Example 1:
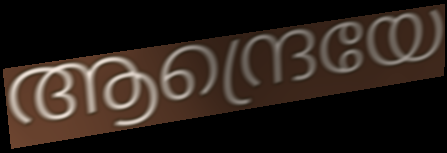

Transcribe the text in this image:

ആന്ദ്രെയേ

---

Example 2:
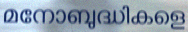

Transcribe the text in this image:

മനോബുദ്ധികളെ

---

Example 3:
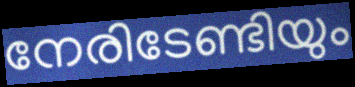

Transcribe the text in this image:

നേരിടേണ്ടിയും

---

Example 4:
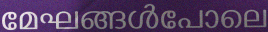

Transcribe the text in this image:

മേഘങ്ങൾപോലെ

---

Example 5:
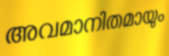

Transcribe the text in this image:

അവമാനിതമായും